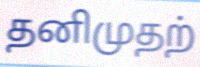
தனிமுதற்